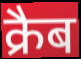
क्रैब